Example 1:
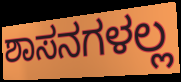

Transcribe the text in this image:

ಶಾಸನಗಳಲ್ಲ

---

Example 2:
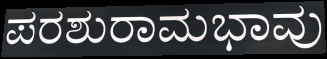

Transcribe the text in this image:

ಪರಶುರಾಮಭಾವು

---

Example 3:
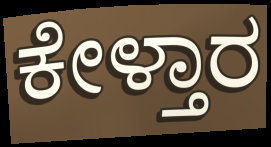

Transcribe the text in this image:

ಕೇಳ್ತಾರ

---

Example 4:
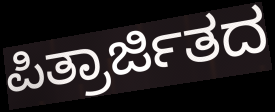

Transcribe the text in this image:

ಪಿತ್ರಾರ್ಜಿತದ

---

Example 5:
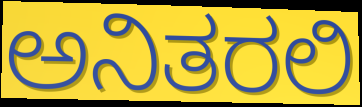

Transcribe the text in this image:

ಅನಿತರಲಿ